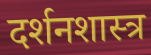
दर्शनशास्त्र